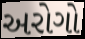
અરોગો